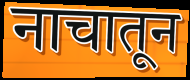
नाचातून